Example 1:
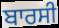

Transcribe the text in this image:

ਬਾਰਸੀ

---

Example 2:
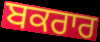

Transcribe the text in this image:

ਬਕਰਾਰ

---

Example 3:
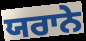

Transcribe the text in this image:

ਯਰਾਨੇ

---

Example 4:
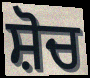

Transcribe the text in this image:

ਸ਼ੋਚ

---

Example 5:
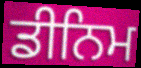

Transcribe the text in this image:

ਡੀਨਿਮ